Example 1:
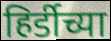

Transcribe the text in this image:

हिर्डीच्या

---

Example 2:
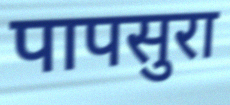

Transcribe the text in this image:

पापसुरा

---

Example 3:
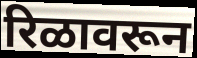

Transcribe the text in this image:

रिळावरून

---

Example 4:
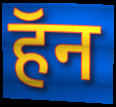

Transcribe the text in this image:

हॅन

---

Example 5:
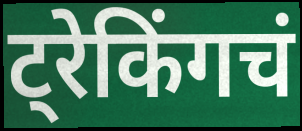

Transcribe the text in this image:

ट्रेकिंगचं